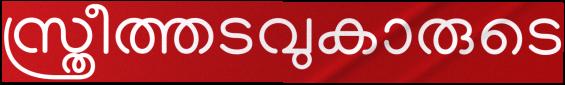
സ്ത്രീത്തടവുകാരുടെ